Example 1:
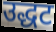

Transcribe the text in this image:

उद्धट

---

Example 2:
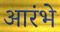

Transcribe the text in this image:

आरंभे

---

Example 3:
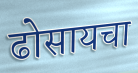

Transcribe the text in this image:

ढोसायचा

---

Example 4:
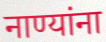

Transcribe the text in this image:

नाण्यांना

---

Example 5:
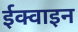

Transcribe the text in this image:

ईक्वाइन